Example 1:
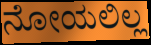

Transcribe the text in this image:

ನೋಯಲಿಲ್ಲ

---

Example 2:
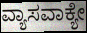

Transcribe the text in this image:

ವ್ಯಾಸವಾಕ್ಯೇ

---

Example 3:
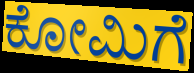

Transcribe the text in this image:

ಕೋಮಿಗೆ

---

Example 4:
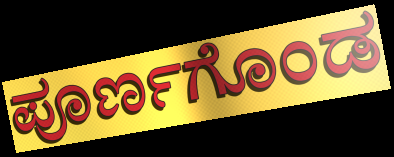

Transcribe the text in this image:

ಪೂರ್ಣಗೊಂಡ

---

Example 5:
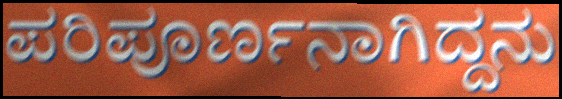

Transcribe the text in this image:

ಪರಿಪೂರ್ಣನಾಗಿದ್ದನು